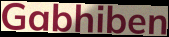
Gabhiben